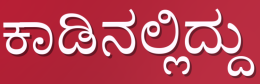
ಕಾಡಿನಲ್ಲಿದ್ದು